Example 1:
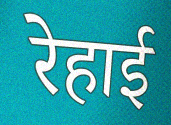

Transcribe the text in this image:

रेहाई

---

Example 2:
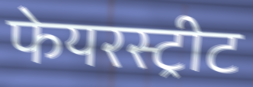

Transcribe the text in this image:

फेयरस्ट्रीट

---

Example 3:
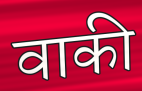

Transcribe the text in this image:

वाकी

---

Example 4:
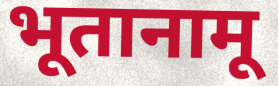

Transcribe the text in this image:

भूतानामू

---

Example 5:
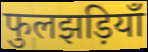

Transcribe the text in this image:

फुलझड़ियाँ